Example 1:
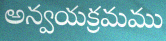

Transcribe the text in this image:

అన్వయక్రమము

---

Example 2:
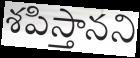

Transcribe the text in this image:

శపిస్తానని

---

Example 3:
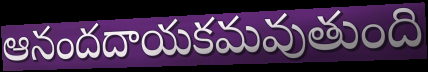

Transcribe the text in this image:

ఆనందదాయకమవుతుంది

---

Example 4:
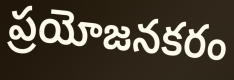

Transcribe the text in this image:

ప్రయోజనకరం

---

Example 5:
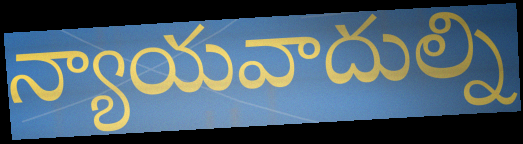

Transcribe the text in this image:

న్యాయవాదుల్ని